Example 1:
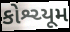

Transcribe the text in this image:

કોશ્ચ્યૂમ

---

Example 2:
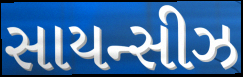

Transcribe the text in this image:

સાયન્સીઝ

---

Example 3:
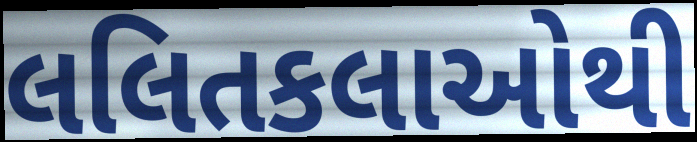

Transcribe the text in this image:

લલિતકલાઓથી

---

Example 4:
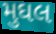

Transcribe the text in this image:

મુઘલ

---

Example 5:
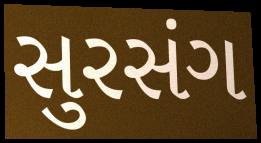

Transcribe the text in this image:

સુરસંગ